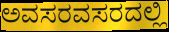
ಅವಸರವಸರದಲ್ಲಿ